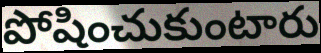
పోషించుకుంటారు